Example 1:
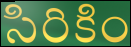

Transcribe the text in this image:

సిరికిం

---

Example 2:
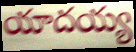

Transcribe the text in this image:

యాదయ్య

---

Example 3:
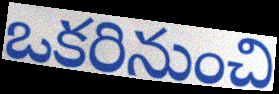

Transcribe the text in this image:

ఒకరినుంచి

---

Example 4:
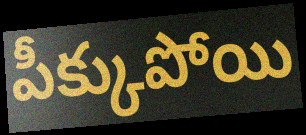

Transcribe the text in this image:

పీక్కుపోయి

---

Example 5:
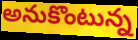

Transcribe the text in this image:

అనుకొంటున్న